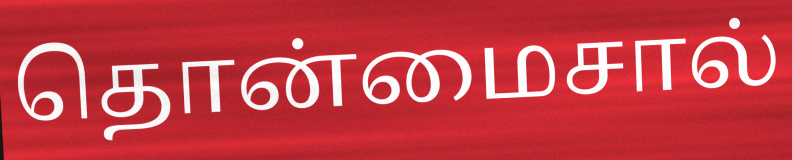
தொன்மைசால்